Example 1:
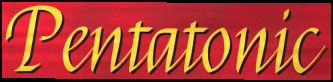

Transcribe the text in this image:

Pentatonic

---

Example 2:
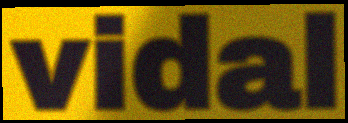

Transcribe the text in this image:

vidal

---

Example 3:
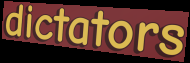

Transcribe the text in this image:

dictators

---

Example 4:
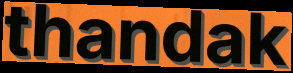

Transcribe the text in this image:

thandak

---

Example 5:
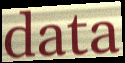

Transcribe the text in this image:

data